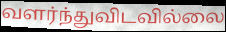
வளர்ந்துவிடவில்லை